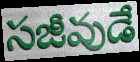
సజీవుడే